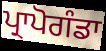
ਪ੍ਰਾਪੋਗੰਡਾ